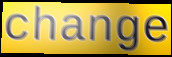
change